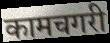
कामचगरी